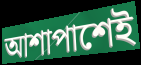
আশাপাশেই